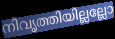
നിവൃത്തിയില്ലല്ലോ